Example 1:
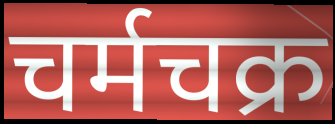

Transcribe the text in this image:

चर्मचक्र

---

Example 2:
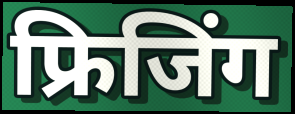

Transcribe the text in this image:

फ्रिजिंग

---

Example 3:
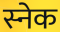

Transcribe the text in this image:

स्‍नेक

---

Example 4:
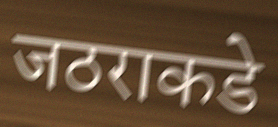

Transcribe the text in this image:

जठराकडे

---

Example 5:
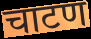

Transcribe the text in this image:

चाटण